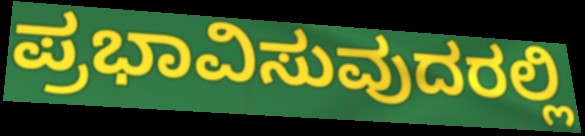
ಪ್ರಭಾವಿಸುವುದರಲ್ಲಿ